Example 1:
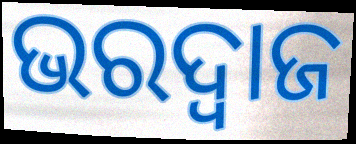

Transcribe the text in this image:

ଭରଦ୍ଵାଜ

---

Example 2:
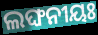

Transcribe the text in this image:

ଲଙ୍ଘନୀୟଃ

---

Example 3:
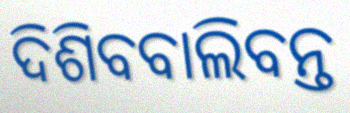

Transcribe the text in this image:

ଦିଶିବବାଲିବନ୍ତ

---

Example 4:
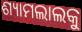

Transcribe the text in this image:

ଶ୍ୟାମଲାଲକୁ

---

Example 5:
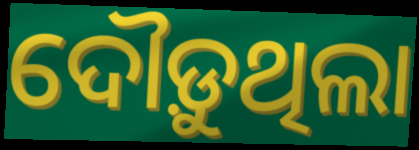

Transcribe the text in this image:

ଦୌଡ଼ୁଥିଲା